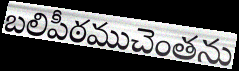
బలిపీఠముచెంతను